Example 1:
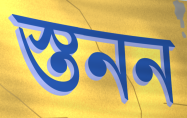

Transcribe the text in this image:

স্তনন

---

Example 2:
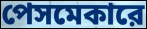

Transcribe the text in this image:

পেসমেকারে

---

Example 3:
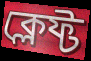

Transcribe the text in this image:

ক্লেফ্ট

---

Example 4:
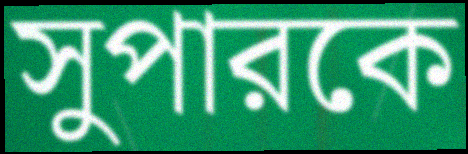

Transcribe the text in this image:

সুপারকে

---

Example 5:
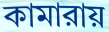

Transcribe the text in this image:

কামারায়